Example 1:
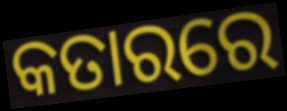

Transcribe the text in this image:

କତାରରେ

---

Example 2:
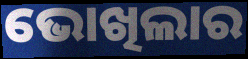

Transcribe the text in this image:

ଭୋଖିଲାର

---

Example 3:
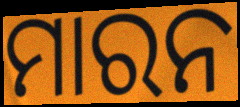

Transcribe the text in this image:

ମାରନ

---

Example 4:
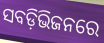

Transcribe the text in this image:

ସବଡ଼ିଭିଜନରେ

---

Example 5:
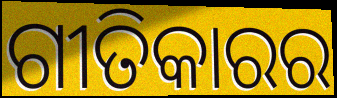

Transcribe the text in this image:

ଗୀତିକାରର